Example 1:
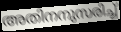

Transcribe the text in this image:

അതിനനുസരിച്ച്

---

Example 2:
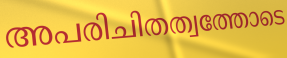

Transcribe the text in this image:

അപരിചിതത്വത്തോടെ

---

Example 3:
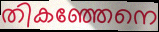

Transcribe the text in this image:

തികഞ്ഞേനെ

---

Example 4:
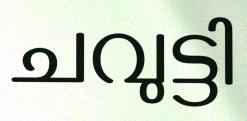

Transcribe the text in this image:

ചവുട്ടി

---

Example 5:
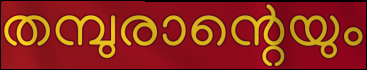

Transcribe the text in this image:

തമ്പുരാന്റെയും